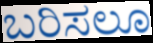
ಬರಿಸಲೂ